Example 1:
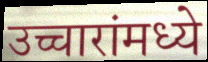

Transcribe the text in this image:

उच्चारांमध्ये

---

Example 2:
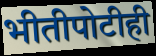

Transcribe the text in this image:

भीतीपोटीही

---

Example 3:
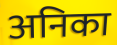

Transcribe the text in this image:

अनिका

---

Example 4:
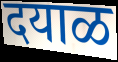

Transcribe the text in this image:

दयाळ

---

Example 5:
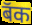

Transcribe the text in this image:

बॅक